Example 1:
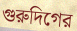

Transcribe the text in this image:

গুরুদিগের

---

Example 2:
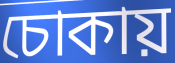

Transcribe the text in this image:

চোকায়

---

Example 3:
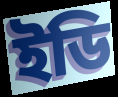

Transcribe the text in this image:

ইডি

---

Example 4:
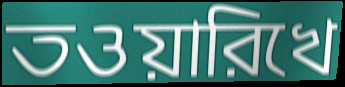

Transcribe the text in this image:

তওয়ারিখে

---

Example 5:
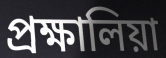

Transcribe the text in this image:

প্রক্ষালিয়া